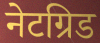
नेटग्रिड